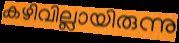
കഴിവില്ലായിരുന്നു